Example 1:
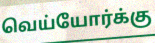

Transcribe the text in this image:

வெய்யோர்க்கு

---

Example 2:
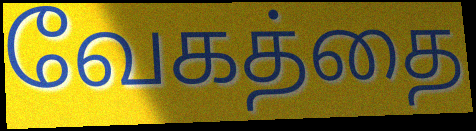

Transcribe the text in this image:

வேகத்தை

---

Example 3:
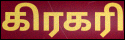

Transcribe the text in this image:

கிரகரி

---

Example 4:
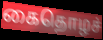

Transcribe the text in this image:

கைதொழச்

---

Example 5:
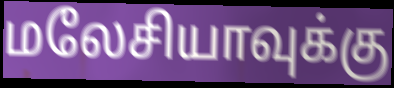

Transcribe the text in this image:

மலேசியாவுக்கு